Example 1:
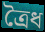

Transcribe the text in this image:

ত্রৈধ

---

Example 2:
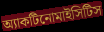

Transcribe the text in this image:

অ্যাকটিনোমাইসিটিস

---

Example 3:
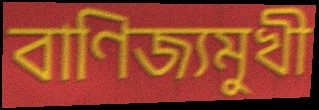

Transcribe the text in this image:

বাণিজ্যমুখী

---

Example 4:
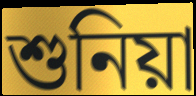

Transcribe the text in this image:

শুনিয়া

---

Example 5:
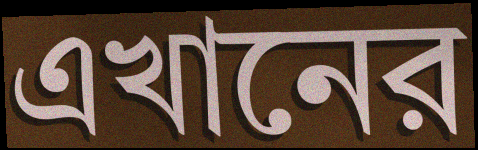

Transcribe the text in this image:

এখানের